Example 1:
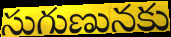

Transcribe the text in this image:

సుగుణునకు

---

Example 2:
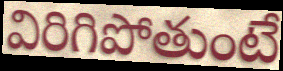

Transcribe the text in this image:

విరిగిపోతుంటే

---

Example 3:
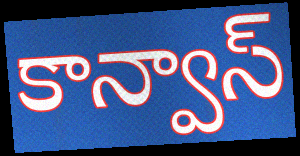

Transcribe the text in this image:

కాన్వాస్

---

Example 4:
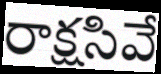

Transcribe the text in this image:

రాక్షసివే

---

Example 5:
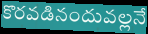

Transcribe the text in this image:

కొరవడినందువల్లనే